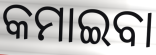
କମାଇବା